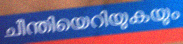
ചീന്തിയെറിയുകയും